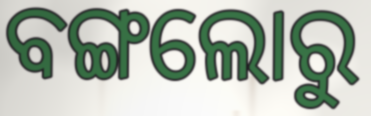
ବଙ୍ଗଲୋରୁ